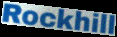
Rockhill